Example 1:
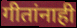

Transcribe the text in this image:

गीतांनाही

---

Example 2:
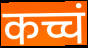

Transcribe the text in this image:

कच्चं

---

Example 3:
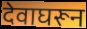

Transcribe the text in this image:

देवाघरून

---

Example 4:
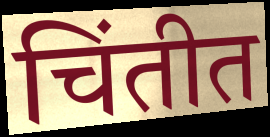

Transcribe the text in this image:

चिंतीत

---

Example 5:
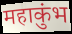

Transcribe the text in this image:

महाकुंभ